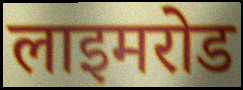
लाइमरोड